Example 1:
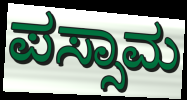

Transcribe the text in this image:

ಪಸ್ಸಾಮ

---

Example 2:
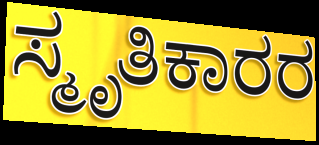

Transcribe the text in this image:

ಸ್ಮೃತಿಕಾರರ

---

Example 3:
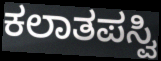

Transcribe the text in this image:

ಕಲಾತಪಸ್ವಿ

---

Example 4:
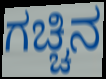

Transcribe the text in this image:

ಗಚ್ಚಿನ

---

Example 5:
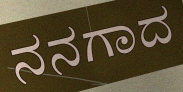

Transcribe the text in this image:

ನನಗಾದ